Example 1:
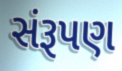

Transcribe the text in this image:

સંરૂપણ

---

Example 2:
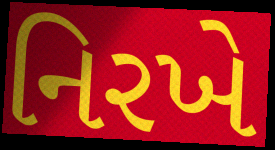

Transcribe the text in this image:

નિરખે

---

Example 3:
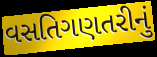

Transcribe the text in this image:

વસતિગણતરીનું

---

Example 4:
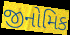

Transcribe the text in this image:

જીનોમિક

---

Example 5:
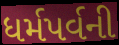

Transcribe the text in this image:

ધર્મપર્વની